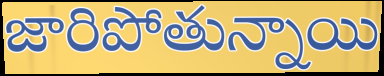
జారిపోతున్నాయి